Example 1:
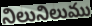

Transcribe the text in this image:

నిలునిలుము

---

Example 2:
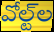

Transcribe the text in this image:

వోల్ట్‌ల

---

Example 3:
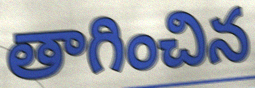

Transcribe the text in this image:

తాగించిన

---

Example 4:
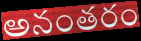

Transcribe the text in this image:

అనంతరం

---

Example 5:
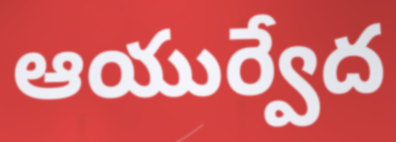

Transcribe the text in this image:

ఆయుర్వేద